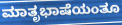
ಮಾತೃಭಾಷೆಯಂತೂ